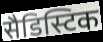
सैडिस्टिक